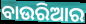
ବାଉରିଆର